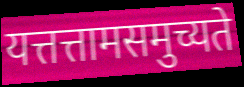
यत्तत्तामसमुच्यते